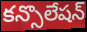
కన్సొలేషన్